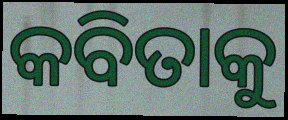
କବିତାକୁ